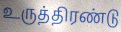
உருத்திரண்டு